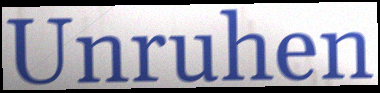
Unruhen